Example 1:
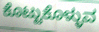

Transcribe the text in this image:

ಕೊಟ್ಟುಕೊಳ್ಳುವ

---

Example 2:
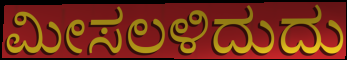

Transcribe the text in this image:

ಮೀಸಲಳಿದುದು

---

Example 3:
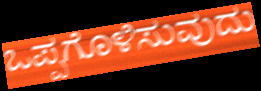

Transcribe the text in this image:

ಒಪ್ಪಗೊಳಿಸುವುದು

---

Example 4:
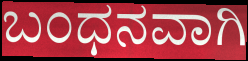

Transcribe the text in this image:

ಬಂಧನವಾಗಿ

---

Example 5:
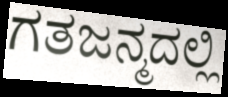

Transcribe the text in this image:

ಗತಜನ್ಮದಲ್ಲಿ